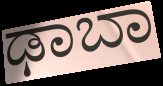
ಢಾಬಾ